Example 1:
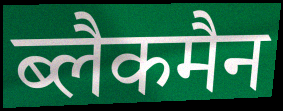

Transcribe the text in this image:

ब्लैकमैन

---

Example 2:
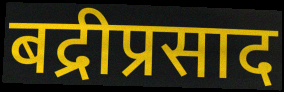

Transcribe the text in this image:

बद्रीप्रसाद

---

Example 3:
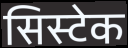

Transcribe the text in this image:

सिस्टेक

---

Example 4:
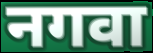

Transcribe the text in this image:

नगवा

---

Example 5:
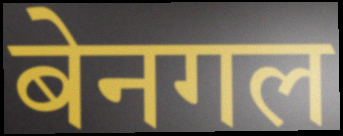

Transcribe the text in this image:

बेनगल